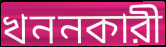
খননকারী